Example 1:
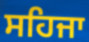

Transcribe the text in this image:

ਸਹਿਜਾ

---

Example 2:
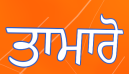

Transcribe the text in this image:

ਤਾਮਾਰੋ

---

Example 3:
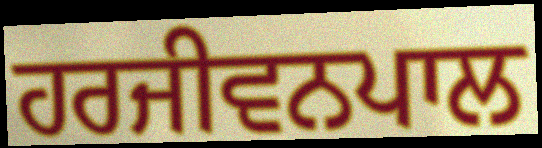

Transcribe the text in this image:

ਹਰਜੀਵਨਪਾਲ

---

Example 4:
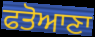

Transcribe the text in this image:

ਫਤੋਆਣਾ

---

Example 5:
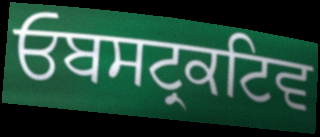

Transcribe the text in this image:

ਓਬਸਟ੍ਰਕਟਿਵ